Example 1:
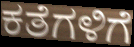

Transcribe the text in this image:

ಕತೆಗಳಿಗೆ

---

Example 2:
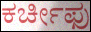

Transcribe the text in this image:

ಕರ್ಚೀಫು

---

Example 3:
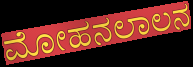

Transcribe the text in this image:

ಮೋಹನಲಾಲನ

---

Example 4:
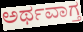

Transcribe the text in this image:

ಅರ್ಥವಾಗ್ತ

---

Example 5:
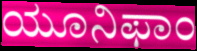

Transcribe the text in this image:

ಯೂನಿಫಾಂ